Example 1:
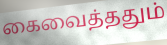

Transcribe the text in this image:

கைவைத்ததும்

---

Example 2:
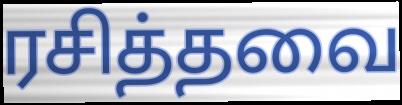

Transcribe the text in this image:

ரசித்தவை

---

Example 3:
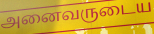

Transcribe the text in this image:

அனைவருடைய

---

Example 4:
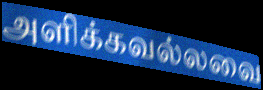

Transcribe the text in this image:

அளிக்கவல்லவை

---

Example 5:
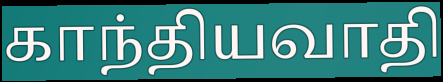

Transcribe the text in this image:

காந்தியவாதி